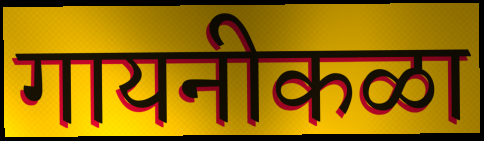
गायनीकळा